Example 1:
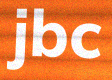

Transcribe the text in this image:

jbc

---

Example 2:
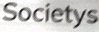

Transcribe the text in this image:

Societys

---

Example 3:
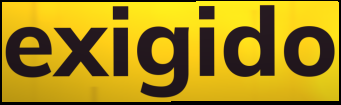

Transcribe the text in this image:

exigido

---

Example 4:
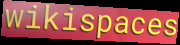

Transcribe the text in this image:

wikispaces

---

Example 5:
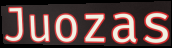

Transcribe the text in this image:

Juozas